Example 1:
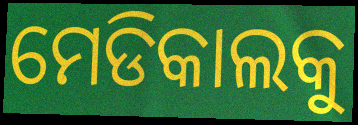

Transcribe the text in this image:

ମେଡିକାଲକୁ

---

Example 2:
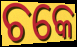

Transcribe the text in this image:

ଚକେ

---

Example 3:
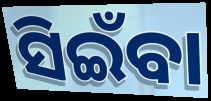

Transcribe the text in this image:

ସିଇଁବା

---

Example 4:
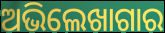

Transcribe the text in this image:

ଅଭିଲେଖାଗାର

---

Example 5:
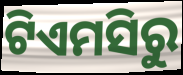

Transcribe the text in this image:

ଟିଏମସିରୁ